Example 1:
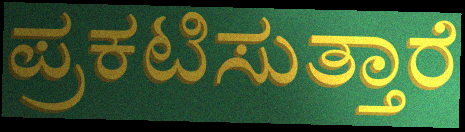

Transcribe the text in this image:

ಪ್ರಕಟಿಸುತ್ತಾರೆ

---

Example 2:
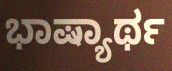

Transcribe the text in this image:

ಭಾಷ್ಯಾರ್ಥ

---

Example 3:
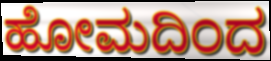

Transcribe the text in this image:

ಹೋಮದಿಂದ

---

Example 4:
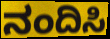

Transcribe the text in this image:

ನಂದಿಸಿ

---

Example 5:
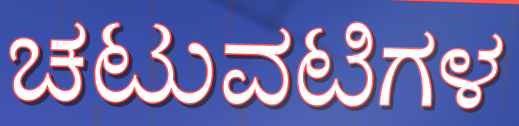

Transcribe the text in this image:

ಚಟುವಟಿಗಳ